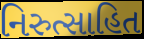
નિરુત્સાહિત